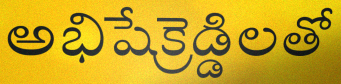
అభిషేక్రెడ్డిలతో